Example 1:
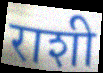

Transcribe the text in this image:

राशी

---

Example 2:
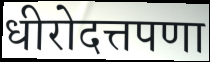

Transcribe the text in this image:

धीरोदत्तपणा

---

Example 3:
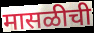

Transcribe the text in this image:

मासळीची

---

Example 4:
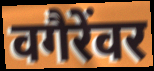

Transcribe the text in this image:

वगैरेंवर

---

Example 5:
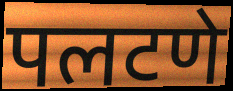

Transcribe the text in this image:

पलटणे